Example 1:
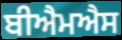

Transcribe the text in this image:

ਬੀਐਮਐਸ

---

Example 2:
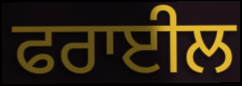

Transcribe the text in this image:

ਫਰਾਈਲ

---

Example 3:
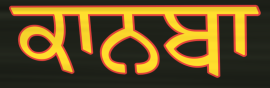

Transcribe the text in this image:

ਕਾਨਬਾ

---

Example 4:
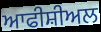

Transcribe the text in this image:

ਆਫੀਸ਼ੀਅਲ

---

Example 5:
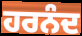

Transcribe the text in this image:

ਹਰਨੰਦ